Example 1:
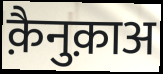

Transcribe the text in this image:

क़ैनुक़ाअ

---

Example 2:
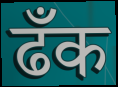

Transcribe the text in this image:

ढँक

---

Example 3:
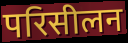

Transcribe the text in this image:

परिसीलन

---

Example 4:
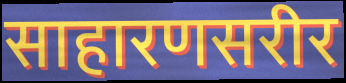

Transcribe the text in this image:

साहारणसरीर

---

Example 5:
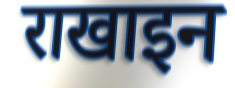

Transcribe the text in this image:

राखाइन